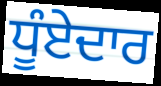
ਧੂੰਏਦਾਰ